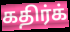
கதிர்க்